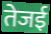
तेजई